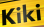
Kiki